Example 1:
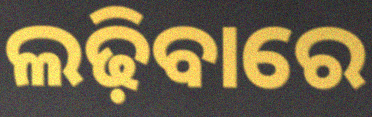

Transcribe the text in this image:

ଲଢ଼ିବାରେ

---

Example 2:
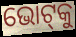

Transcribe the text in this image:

ଭୋଟ୍‍କୁ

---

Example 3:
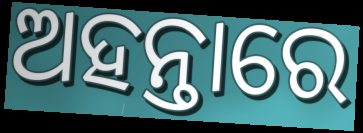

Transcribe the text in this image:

ଅହନ୍ତାରେ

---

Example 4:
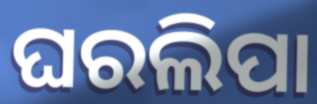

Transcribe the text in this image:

ଘରଲିପା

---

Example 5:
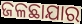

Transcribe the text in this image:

ଜଳଛାଯାର